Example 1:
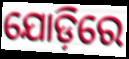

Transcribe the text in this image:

ଯୋଡ଼ିରେ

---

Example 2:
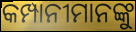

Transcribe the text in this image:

କମ୍ପାନୀମାନଙ୍କୁ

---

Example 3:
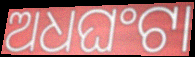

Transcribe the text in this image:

ଅଧଘଂଟା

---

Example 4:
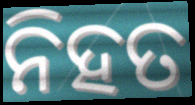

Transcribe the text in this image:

ନିହତ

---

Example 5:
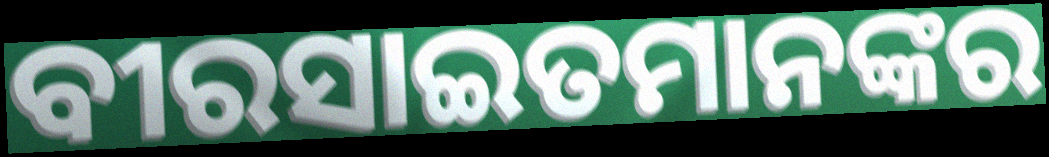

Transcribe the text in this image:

ବୀରସାଇତମାନଙ୍କର